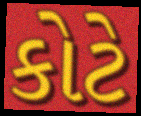
કોટે